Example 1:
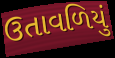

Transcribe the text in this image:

ઉતાવળિયું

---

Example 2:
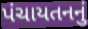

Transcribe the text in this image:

પંચાયતનનું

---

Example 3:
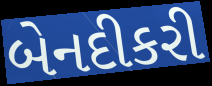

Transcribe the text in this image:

બેનદીકરી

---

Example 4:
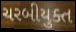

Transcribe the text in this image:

ચરબીયુક્ત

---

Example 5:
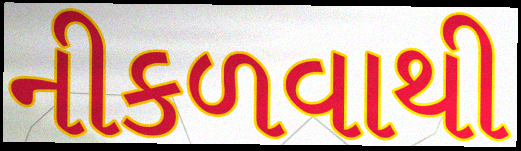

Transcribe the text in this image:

નીકળવાથી